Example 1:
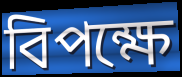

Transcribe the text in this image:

বিপক্ষে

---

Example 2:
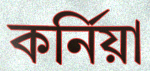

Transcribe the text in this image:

কৰ্নিয়া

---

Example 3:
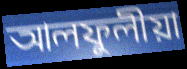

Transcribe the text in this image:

আলফুলীয়া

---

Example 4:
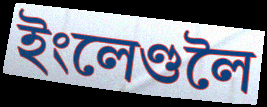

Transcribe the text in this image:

ইংলেণ্ডলৈ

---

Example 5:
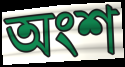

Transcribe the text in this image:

অংশ